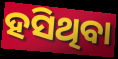
ହସିଥିବା